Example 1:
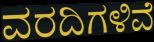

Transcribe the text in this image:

ವರದಿಗಳಿವೆ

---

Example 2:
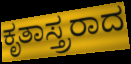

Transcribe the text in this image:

ಕೃತಾಸ್ತ್ರರಾದ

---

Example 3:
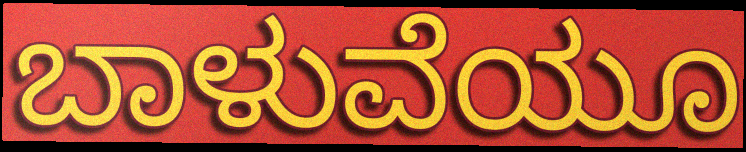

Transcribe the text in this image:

ಬಾಳುವೆಯೂ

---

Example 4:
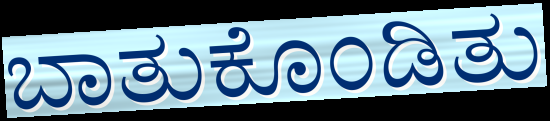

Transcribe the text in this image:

ಬಾತುಕೊಂಡಿತು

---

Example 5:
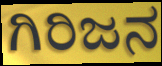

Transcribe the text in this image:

ಗಿರಿಜನ